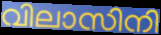
വിലാസിനി